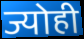
ज्योही